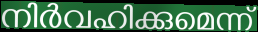
നിർവഹിക്കുമെന്ന്